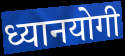
ध्यानयोगी